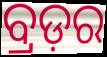
ବ୍ରଡ଼ର